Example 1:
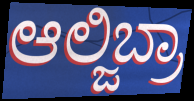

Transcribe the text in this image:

ಆಲ್ಜಿಬ್ರಾ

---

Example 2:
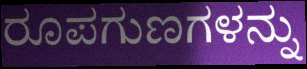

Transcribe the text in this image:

ರೂಪಗುಣಗಳನ್ನು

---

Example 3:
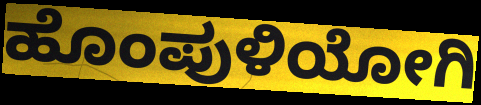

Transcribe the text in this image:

ಹೊಂಪುಳಿಯೋಗಿ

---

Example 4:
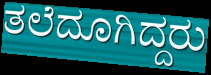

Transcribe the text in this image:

ತಲೆದೂಗಿದ್ದರು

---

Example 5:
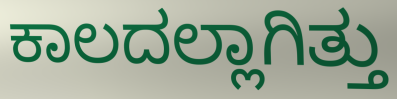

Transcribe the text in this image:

ಕಾಲದಲ್ಲಾಗಿತ್ತು